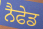
ਨੈਫੇਡ